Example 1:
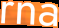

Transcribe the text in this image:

rna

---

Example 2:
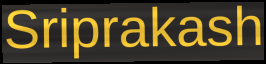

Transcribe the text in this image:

Sriprakash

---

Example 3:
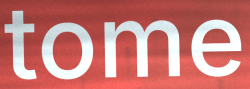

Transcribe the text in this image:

tome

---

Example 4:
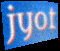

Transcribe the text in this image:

jyot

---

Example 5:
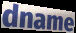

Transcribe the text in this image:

dname